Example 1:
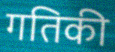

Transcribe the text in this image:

गतिकी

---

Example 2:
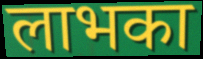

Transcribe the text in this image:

लाभका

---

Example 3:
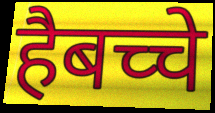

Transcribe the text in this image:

हैबच्चे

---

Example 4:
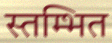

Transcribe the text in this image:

स्तम्भित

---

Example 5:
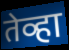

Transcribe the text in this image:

तेव्हा